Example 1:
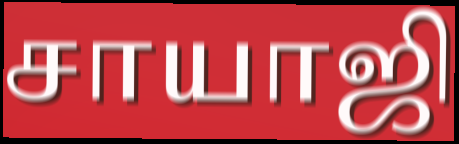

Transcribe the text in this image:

சாயாஜி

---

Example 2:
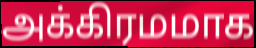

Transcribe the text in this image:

அக்கிரமமாக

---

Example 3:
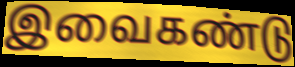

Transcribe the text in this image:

இவைகண்டு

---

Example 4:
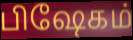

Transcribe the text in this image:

பிஷேகம்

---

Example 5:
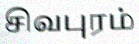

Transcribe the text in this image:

சிவபுரம்